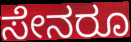
ಸೇನರೂ